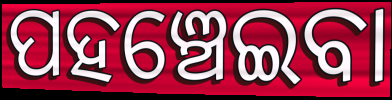
ପହଞ୍ଚେଇବା